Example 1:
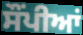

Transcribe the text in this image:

ਸੌਂਪੀਆਂ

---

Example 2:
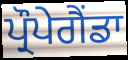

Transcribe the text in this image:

ਪ੍ਰੌਪੇਗੈਂਡਾ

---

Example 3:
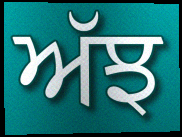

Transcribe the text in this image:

ਅੱਝ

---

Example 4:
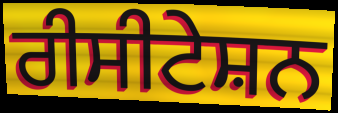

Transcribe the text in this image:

ਰੀਸੀਟੇਸ਼ਨ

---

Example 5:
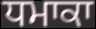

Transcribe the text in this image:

ਧਮਾਕਾ